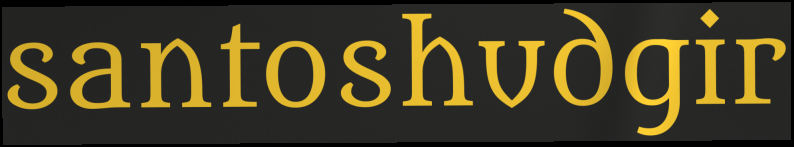
santoshudgir